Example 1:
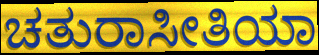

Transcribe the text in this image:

ಚತುರಾಸೀತಿಯಾ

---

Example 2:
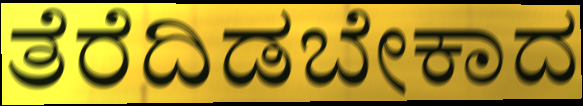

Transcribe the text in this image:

ತೆರೆದಿಡಬೇಕಾದ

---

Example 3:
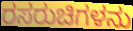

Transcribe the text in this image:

ರಸರುಚಿಗಳನು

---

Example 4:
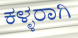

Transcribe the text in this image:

ಕಳ್ಳರಾಗಿ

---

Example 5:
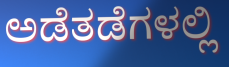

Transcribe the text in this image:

ಅಡೆತಡೆಗಳಲ್ಲಿ